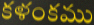
కళంకము